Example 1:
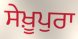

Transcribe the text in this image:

ਸੇਖ਼ੂਪੁਰਾ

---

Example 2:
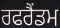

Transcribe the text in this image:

ਰਫਰੈਂਡਮ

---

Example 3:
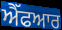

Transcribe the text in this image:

ਐੱਫਆਰ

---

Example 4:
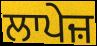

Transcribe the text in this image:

ਲਾਪੇਜ਼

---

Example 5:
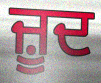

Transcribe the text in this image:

ਜ਼ੂਦ